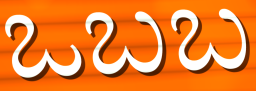
ಒಬಬ